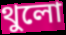
থুলো